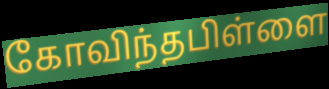
கோவிந்தபிள்ளை